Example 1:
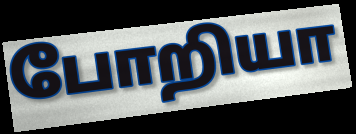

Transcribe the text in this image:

போறியா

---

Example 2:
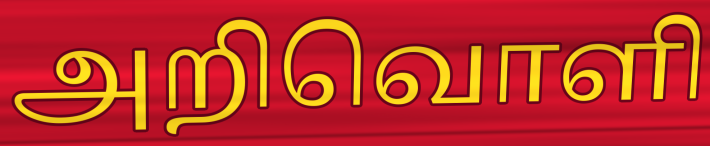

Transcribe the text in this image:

அறிவொளி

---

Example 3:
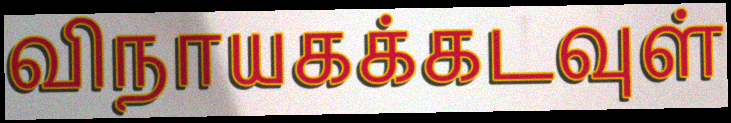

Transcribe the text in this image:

விநாயகக்கடவுள்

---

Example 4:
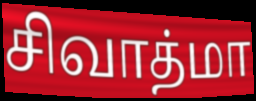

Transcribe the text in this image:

சிவாத்மா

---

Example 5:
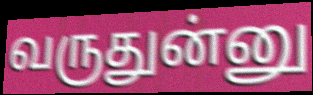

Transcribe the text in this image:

வருதுன்னு